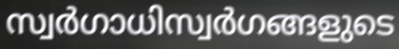
സ്വർഗാധിസ്വർഗങ്ങളുടെ